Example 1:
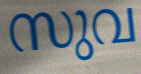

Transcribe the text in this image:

സുവ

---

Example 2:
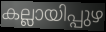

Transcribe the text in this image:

കല്ലായിപ്പുഴ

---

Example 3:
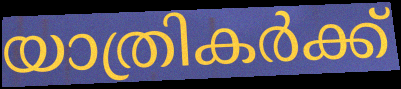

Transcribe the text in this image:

യാത്രികർക്ക്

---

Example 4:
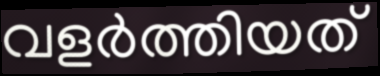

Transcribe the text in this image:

വളർത്തിയത്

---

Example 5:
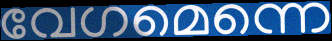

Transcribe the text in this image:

വേഗമെന്നെ